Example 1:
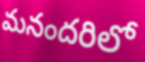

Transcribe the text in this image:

మనందరిలో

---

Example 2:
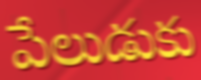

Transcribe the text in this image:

పేలుడుకు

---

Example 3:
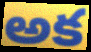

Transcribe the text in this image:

అక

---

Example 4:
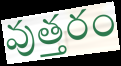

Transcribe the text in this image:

వుత్తరం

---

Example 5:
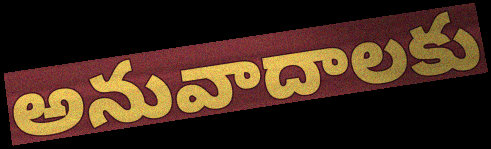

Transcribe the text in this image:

అనువాదాలకు